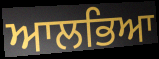
ਆਲਭਿਆ